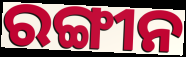
ରଙ୍ଗୀନ